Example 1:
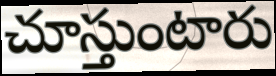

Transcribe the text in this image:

చూస్తుంటారు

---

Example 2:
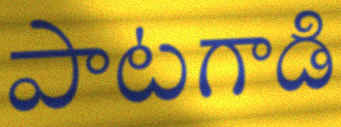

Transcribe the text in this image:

పాటగాడి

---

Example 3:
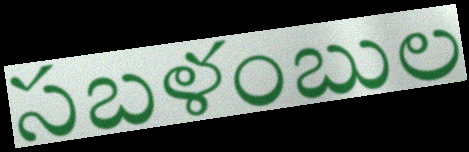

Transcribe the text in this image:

సబళంబుల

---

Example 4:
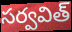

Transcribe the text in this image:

సర్వవిత్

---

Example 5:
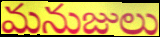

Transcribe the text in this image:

మనుజులు